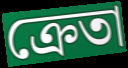
ক্ৰেতা